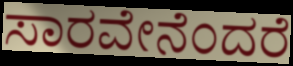
ಸಾರವೇನೆಂದರೆ